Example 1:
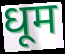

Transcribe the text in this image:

धूम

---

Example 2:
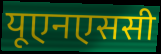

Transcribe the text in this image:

यूएनएससी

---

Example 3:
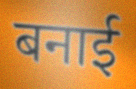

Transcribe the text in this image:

बनाई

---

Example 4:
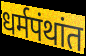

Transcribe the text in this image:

धर्मपंथांत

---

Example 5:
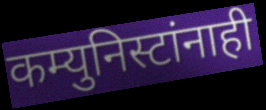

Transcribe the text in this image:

कम्युनिस्टांनाही